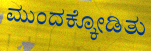
ಮುಂದಕ್ಕೋಡಿತು